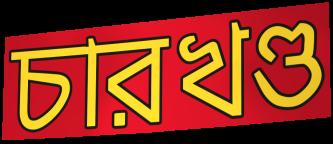
চারখণ্ড